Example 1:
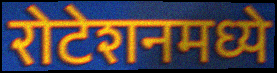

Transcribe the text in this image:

रोटेशनमध्ये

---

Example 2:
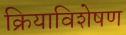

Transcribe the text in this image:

क्रियाविशेषण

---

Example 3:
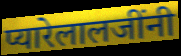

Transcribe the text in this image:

प्यारेलालजींनी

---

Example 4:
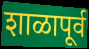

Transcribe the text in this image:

शाळापूर्व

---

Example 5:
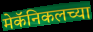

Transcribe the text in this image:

मेकॅनिकलच्या